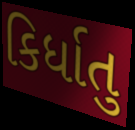
કિર્ધાતુ